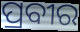
ପ୍ରବୀର